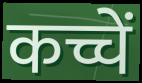
कच्चें